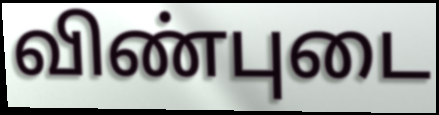
விண்புடை